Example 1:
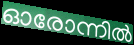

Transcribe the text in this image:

ഓരോന്നിൽ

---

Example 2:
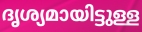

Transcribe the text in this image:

ദൃശ്യമായിട്ടുള്ള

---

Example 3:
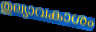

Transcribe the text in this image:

തുല്യാവകാശം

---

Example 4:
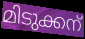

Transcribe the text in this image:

മിടുക്കന്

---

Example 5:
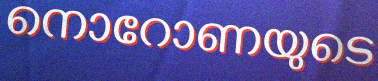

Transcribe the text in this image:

നൊറോണയുടെ